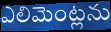
ఎలిమెంట్లను